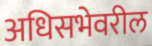
अधिसभेवरील